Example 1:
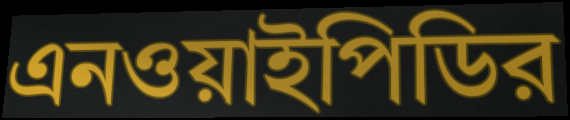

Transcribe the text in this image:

এনওয়াইপিডির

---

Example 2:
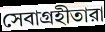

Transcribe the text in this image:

সেবাগ্রহীতারা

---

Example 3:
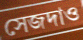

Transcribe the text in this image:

সেজদাও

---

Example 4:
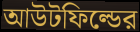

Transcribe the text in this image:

আউটফিল্ডের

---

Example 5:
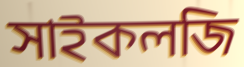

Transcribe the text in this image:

সাইকলজি